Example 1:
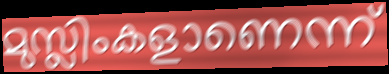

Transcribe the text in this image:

മുസ്ലിംകളാണെന്ന്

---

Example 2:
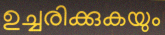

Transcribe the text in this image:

ഉച്ചരിക്കുകയും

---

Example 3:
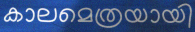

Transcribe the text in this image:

കാലമെത്രയായി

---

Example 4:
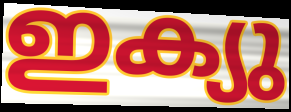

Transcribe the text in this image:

ഇക്യു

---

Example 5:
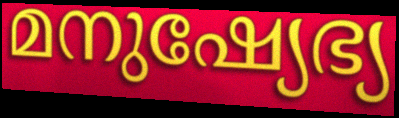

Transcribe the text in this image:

മനുഷ്യേഭ്യ